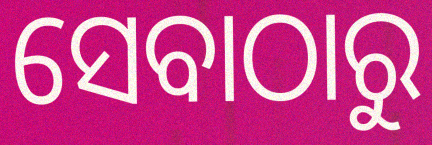
ସେବାଠାରୁ